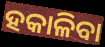
ହକାଳିବା